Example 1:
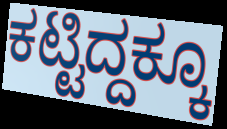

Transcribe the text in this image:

ಕಟ್ಟಿದ್ದಕ್ಕೂ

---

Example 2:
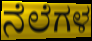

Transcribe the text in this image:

ನೆಲೆಗಳ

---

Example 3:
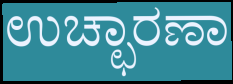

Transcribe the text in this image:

ಉಚ್ಛಾರಣಾ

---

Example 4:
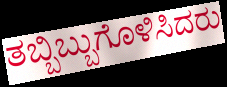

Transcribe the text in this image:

ತಬ್ಬಿಬ್ಬುಗೊಳಿಸಿದರು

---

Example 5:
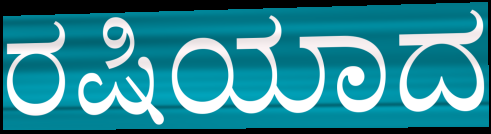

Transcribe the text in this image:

ರಷಿಯಾದ